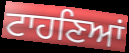
ਟਾਹਣਿਆਂ